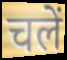
चलें